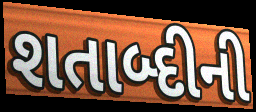
શતાબ્દીની